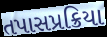
તપાસપ્રક્રિયા